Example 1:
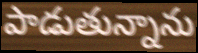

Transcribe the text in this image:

పాడుతున్నాను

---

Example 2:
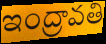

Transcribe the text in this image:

ఇంద్రావతి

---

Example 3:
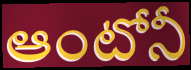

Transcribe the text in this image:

ఆంటోనీ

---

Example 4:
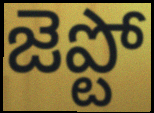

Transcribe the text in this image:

జెప్టో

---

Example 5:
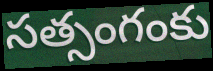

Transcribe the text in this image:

సత్సంగంకు